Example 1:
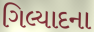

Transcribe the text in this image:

ગિલ્યાદના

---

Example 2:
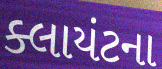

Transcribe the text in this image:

ક્લાયંટના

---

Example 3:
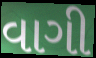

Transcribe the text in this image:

વાગી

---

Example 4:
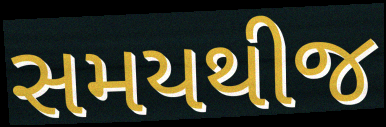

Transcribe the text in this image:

સમયથીજ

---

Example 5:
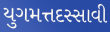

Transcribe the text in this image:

યુગમત્તદસ્સાવી